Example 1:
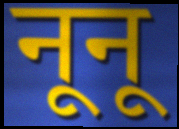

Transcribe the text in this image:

नूनू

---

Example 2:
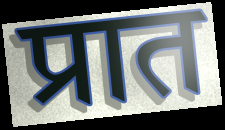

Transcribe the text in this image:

प्रात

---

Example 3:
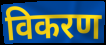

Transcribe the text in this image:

विकरण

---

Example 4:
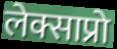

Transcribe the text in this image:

लेक्साप्रो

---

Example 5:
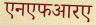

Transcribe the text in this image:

एनएफआरए